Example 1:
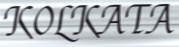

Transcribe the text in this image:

KOLKATA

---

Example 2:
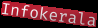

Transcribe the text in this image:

Infokerala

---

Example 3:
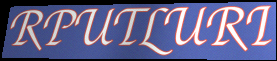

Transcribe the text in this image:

RPUTLURI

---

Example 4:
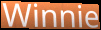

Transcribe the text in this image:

Winnie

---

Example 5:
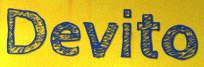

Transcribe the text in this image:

Devito